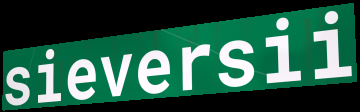
sieversii